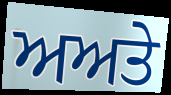
ਅਅਤੇ